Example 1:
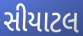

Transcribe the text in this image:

સીયાટલ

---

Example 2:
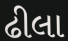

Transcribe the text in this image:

ઢીલા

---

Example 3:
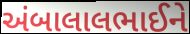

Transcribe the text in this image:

અંબાલાલભાઈને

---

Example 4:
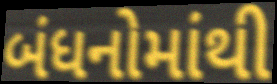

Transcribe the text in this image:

બંધનોમાંથી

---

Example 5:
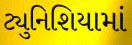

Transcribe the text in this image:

ટ્યુનિશિયામાં